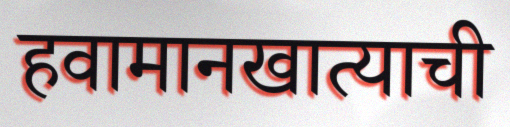
हवामानखात्याची